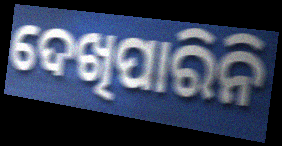
ଦେଖିପାରିନି